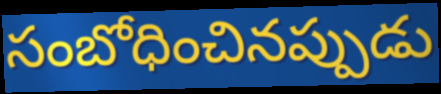
సంబోధించినప్పుడు